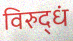
विरुद्धं